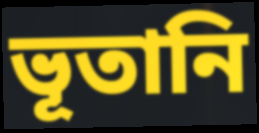
ভূতানি